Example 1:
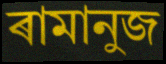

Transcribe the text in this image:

ৰামানুজ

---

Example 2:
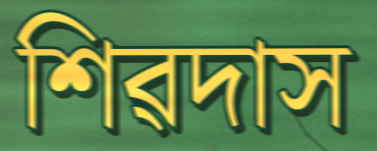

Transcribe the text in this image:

শিৱদাস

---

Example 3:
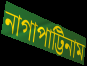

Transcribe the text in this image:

নাগাপাট্টিনাম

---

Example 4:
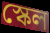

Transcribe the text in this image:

স্কেল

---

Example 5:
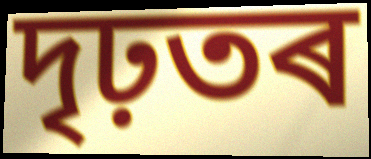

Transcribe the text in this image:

দৃঢ়তৰ